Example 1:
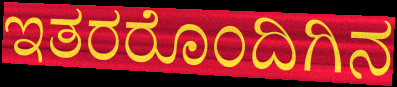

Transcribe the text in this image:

ಇತರರೊಂದಿಗಿನ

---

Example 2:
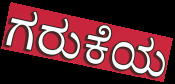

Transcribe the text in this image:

ಗರುಕೆಯ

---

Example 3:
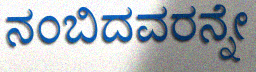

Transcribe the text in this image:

ನಂಬಿದವರನ್ನೇ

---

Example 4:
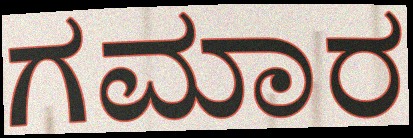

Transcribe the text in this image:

ಗಮಾರ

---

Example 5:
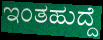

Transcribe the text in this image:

ಇಂತಹುದ್ದೆ